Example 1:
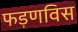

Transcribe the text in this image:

फड़णविस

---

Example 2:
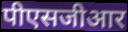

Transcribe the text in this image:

पीएसजीआर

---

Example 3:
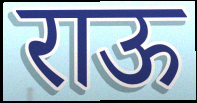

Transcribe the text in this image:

राऊ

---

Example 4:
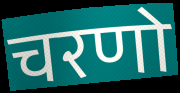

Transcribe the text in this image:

चरणो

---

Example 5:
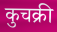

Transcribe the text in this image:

कुचक्री